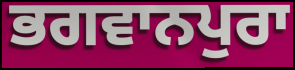
ਭਗਵਾਨਪੁਰਾ